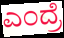
ಎಂದ್ರೆ